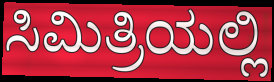
ಸಿಮಿತ್ರಿಯಲ್ಲಿ